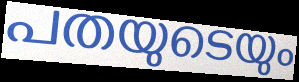
പതയുടെയും